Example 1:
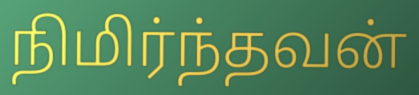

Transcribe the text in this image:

நிமிர்ந்தவன்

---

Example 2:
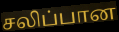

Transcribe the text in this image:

சலிப்பான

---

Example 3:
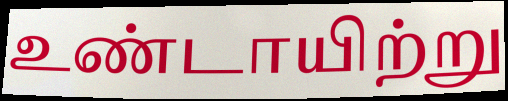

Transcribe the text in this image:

உண்டாயிற்று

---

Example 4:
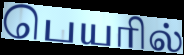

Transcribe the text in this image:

பெயரில்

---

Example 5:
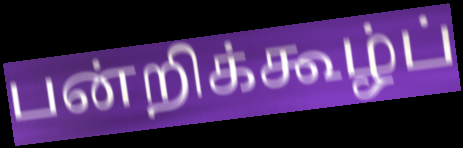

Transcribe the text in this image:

பன்றிக்கூழ்ப்